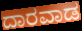
ದಾರವಾಡ